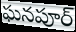
ఘనపూర్